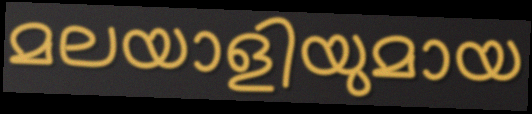
മലയാളിയുമായ